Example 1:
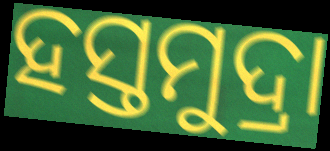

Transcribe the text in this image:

ହସ୍ତମୁଦ୍ରା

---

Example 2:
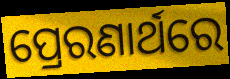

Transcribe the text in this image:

ପ୍ରେରଣାର୍ଥରେ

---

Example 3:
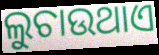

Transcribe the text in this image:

ଲୁଚାଉଥାଏ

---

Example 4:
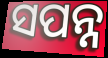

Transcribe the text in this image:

ସପନ୍ନ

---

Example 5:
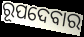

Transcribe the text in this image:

ରୂପଦେବାର